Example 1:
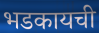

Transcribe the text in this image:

भडकायची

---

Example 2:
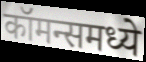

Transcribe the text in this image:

कॉमन्समध्ये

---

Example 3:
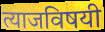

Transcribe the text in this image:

त्याजविषयी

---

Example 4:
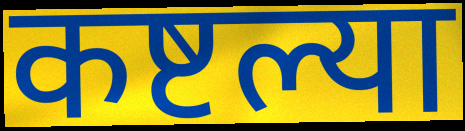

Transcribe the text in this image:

कष्टल्या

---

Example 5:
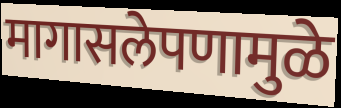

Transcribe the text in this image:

मागासलेपणामुळे